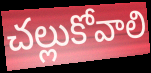
చల్లుకోవాలి